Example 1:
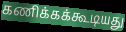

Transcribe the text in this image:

கணிக்கக்கூடியது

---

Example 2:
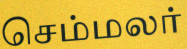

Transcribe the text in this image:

செம்மலர்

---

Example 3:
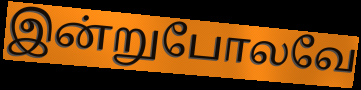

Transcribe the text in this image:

இன்றுபோலவே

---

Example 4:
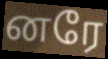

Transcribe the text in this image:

னரே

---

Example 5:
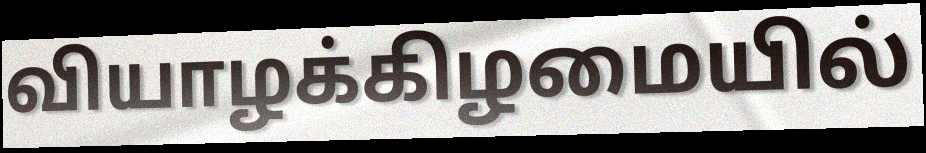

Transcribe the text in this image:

வியாழக்கிழமையில்